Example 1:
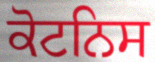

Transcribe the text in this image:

ਕੋਟਨਿਸ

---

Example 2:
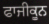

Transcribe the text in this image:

ਫਾਜੀਕੂਨ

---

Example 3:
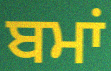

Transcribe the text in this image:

ਬਮਾਂ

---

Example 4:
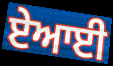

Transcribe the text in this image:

ਏਆਈ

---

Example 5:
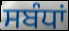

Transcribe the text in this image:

ਸਬੰਧਾਂ